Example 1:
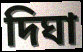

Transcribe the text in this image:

দিঘা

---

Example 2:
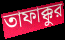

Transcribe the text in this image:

তাফাক্কুর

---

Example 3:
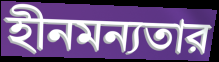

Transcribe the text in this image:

হীনমন্যতার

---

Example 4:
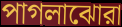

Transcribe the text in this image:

পাগলাঝোরা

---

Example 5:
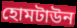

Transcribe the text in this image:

হোমটাউন